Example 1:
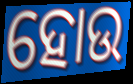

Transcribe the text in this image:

ହୋଉ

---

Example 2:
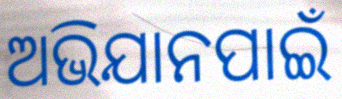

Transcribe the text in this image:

ଅଭିଯାନପାଇଁ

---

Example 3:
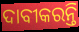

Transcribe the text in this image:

ଦାବୀକରନ୍ତି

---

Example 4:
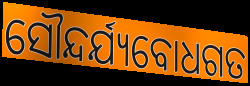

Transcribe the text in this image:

ସୌନ୍ଦର୍ଯ୍ୟବୋଧଗତ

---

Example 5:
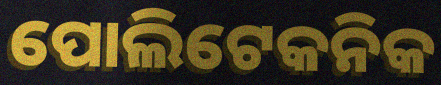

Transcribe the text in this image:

ପୋଲିଟେକନିକ